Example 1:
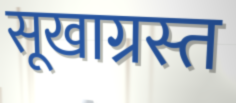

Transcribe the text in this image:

सूखाग्रस्‍त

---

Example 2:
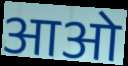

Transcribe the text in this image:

आओ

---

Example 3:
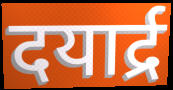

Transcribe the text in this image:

दयार्द्र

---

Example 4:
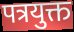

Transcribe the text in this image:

पत्रयुक्त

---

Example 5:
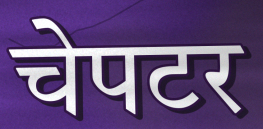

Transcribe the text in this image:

चेपटर